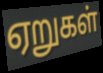
ஏறுகள்